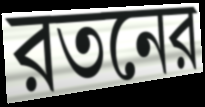
রতনের